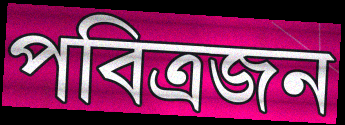
পবিত্রজন